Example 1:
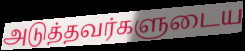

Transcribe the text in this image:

அடுத்தவர்களுடைய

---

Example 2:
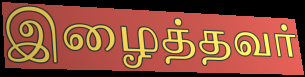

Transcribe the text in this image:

இழைத்தவர்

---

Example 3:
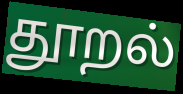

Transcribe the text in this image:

தூறல்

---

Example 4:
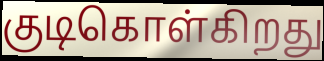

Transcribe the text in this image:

குடிகொள்கிறது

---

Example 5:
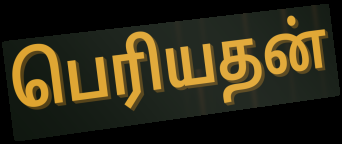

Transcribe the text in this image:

பெரியதன்